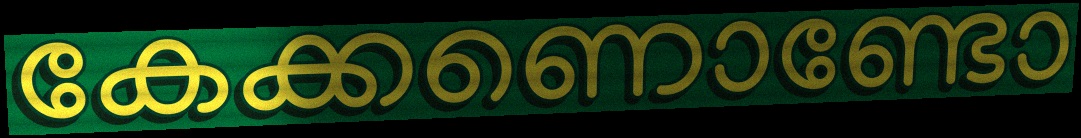
കേക്കണൊണ്ടോ